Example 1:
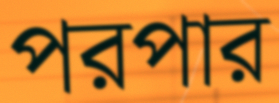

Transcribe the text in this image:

পরপার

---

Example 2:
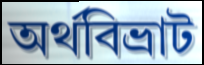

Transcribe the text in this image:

অর্থবিভ্রাট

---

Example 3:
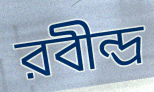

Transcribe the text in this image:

রবীন্দ্র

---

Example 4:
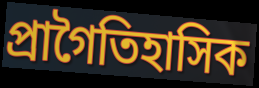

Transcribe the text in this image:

প্রাগৈতিহাসিক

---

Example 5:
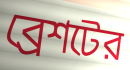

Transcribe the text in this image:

ব্রেশটের